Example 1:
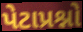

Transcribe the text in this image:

પેટાપ્રશ્નો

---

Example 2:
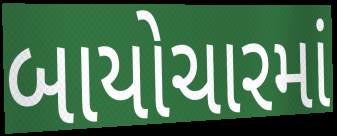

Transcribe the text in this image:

બાયોચારમાં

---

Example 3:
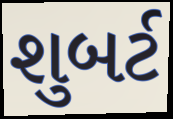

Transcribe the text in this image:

શુબર્ટ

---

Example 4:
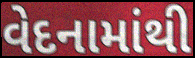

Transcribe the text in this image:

વેદનામાંથી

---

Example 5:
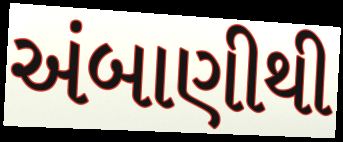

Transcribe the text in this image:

અંબાણીથી